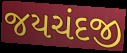
જયચંદજી